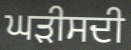
ਘੜੀਸਦੀ